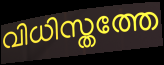
വിധിസ്തത്തേ